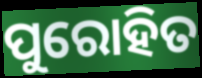
ପୁରୋହିତ